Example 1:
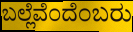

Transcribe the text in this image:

ಬಲ್ಲೆವೆಂದೆಂಬರು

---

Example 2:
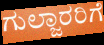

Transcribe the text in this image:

ಗುಲ್ಜಾರರಿಗೆ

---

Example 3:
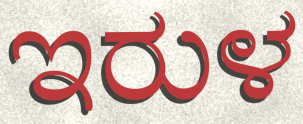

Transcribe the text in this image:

ಇರುಳ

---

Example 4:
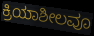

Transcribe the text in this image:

ಕ್ರಿಯಾಶೀಲವೂ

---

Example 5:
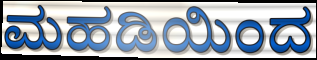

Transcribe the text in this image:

ಮಹಡಿಯಿಂದ